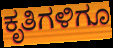
ಕೃತಿಗಳಿಗೂ